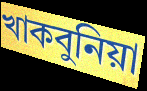
খাকবুনিয়া